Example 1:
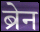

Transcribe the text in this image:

ब्रेन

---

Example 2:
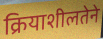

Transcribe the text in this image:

क्रियाशीलतेने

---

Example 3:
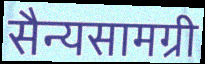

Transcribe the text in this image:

सैन्यसामग्री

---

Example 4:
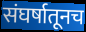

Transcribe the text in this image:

संघर्षातूनच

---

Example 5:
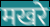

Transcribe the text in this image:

मखरे